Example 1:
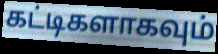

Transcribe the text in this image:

கட்டிகளாகவும்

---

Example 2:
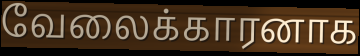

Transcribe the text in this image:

வேலைக்காரனாக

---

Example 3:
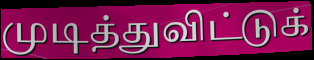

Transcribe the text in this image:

முடித்துவிட்டுக்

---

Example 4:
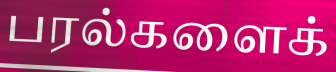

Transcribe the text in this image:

பரல்களைக்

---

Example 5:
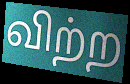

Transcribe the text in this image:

விற்ற